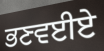
ਭਣਵਈਏ